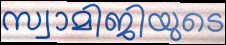
സ്വാമിജിയുടെ